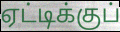
ஏட்டிக்குப்